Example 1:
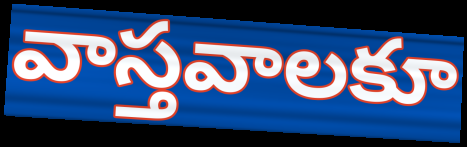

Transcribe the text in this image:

వాస్తవాలకూ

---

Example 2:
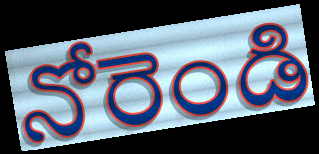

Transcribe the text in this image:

నోరెండి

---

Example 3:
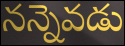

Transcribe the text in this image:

నన్నెవడు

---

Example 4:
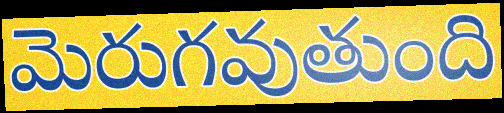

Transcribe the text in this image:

మెరుగవుతుంది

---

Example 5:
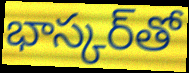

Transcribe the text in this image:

భాస్కర్‌తో